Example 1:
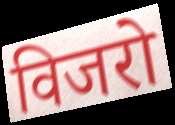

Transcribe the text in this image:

विजरो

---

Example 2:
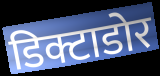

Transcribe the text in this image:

डिक्टाडोर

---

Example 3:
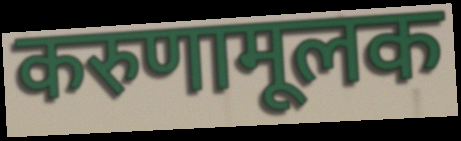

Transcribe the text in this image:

करुणामूलक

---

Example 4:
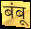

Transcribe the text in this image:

बंबू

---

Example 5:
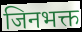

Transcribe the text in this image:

जिनभक्त